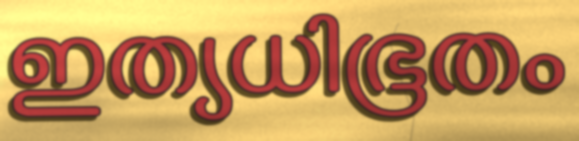
ഇത്യധിഭൂതം